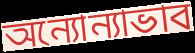
অন্যোন্যাভাব